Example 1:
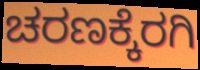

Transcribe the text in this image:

ಚರಣಕ್ಕೆರಗಿ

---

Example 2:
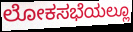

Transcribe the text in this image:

ಲೋಕಸಭೆಯಲ್ಲೂ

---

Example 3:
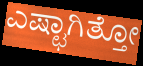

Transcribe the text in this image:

ಎಷ್ಟಾಗಿತ್ತೋ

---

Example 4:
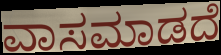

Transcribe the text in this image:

ವಾಸಮಾಡದೆ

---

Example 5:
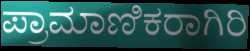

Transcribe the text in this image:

ಪ್ರಾಮಾಣಿಕರಾಗಿರಿ